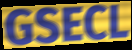
GSECL